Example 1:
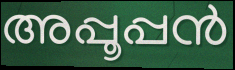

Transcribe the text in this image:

അപ്പൂപ്പൻ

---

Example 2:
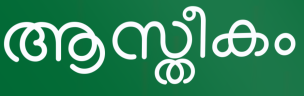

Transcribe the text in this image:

ആസ്തീകം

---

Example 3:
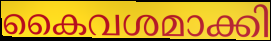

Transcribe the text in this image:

കൈവശമാക്കി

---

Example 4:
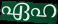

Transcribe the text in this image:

ഏഹ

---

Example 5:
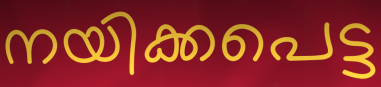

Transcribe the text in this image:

നയിക്കപെട്ട